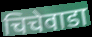
चिचेवाडा